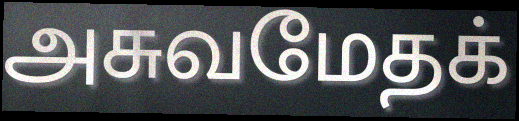
அசுவமேதக்